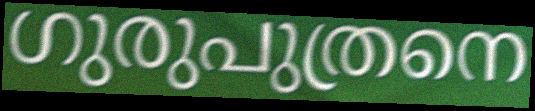
ഗുരുപുത്രനെ